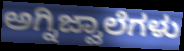
ಅಗ್ನಿಜ್ವಾಲೆಗಳು